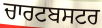
ਚਾਰਟਬਸਟਰ